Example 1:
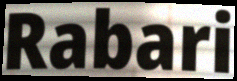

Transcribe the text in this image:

Rabari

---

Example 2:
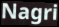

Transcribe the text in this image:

Nagri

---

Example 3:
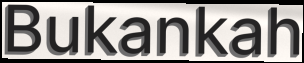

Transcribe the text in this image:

Bukankah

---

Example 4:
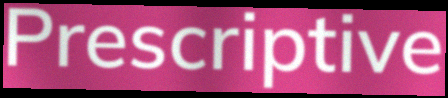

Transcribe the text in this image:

Prescriptive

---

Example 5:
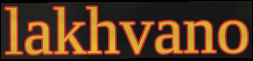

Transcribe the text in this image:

lakhvano